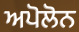
ਅਪੋਲੋਨ